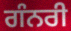
ਗੰਨਰੀ